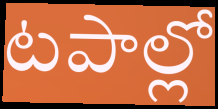
టపాల్లో